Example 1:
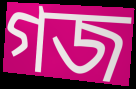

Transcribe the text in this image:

গজ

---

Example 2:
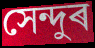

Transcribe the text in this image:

সেন্দুৰ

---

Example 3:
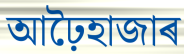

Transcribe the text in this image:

আঢ়ৈহাজাৰ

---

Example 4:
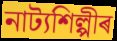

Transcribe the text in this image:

নাট্যশিল্পীৰ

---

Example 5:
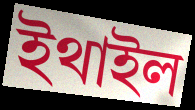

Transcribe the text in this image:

ইথাইল